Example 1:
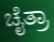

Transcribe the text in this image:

ಚೈತ್ರಾ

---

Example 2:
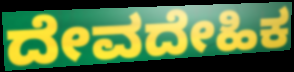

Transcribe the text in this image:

ದೇವದೇಹಿಕ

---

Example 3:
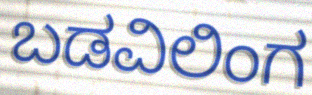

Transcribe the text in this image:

ಬಡವಿಲಿಂಗ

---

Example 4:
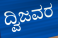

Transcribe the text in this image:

ದ್ವಿಜವರ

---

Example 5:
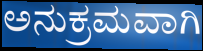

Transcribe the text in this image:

ಅನುಕ್ರಮವಾಗಿ